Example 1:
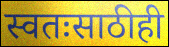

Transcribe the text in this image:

स्वतःसाठीही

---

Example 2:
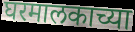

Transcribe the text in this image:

घरमालकाच्या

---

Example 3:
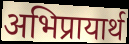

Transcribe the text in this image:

अभिप्रायार्थ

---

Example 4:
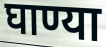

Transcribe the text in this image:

घाण्या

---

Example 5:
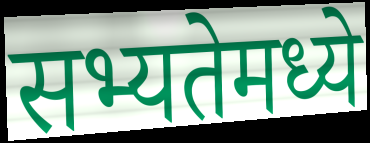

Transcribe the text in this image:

सभ्यतेमध्ये